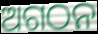
ଅଗଠନ